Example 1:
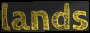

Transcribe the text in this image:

lands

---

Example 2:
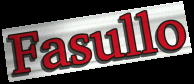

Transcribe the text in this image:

Fasullo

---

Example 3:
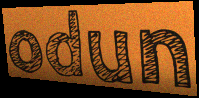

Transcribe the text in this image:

odun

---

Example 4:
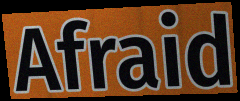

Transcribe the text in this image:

Afraid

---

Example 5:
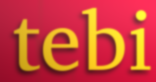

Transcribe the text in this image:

tebi